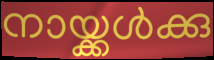
നായ്ക്കൾക്കു